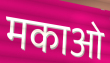
मकाओ